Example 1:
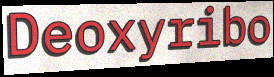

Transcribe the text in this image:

Deoxyribo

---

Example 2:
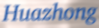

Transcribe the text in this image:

Huazhong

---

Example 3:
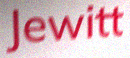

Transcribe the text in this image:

Jewitt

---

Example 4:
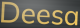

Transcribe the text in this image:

Deesa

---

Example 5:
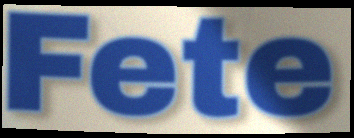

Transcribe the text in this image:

Fete